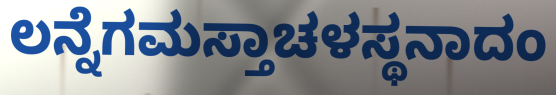
ಲನ್ನೆಗಮಸ್ತಾಚಳಸ್ಥನಾದಂ